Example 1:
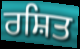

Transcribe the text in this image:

ਰਸ਼ਿਤ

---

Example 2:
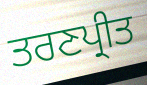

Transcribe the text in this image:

ਤਰਣਪ੍ਰੀਤ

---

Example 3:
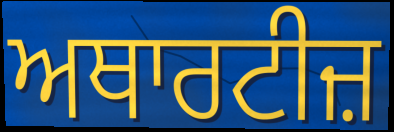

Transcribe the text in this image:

ਅਥਾਰਟੀਜ਼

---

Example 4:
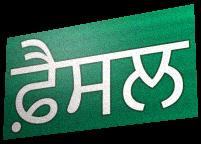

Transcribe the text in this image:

ਫ਼ੈਸਲ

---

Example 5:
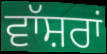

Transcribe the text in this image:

ਵਾੱਸ਼ਰਾਂ